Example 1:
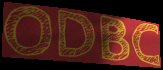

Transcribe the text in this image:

ODBC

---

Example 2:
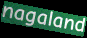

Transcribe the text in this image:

nagaland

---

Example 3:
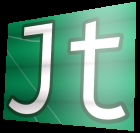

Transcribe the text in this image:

Jt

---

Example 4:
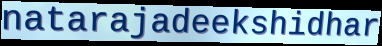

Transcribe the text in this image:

natarajadeekshidhar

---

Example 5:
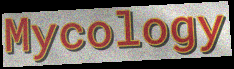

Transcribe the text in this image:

Mycology